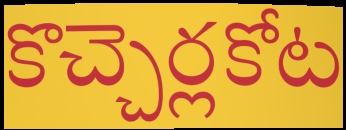
కొచ్చెర్లకోట